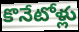
కొనేటోళ్లు